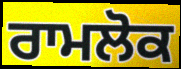
ਰਾਮਲੋਕ